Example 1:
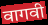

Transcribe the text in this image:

वागवी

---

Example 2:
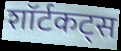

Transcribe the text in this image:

शॉर्टकट्स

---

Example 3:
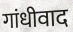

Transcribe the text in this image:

गांधीवाद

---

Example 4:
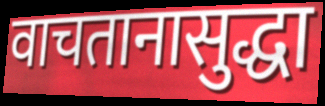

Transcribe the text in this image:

वाचतानासुद्धा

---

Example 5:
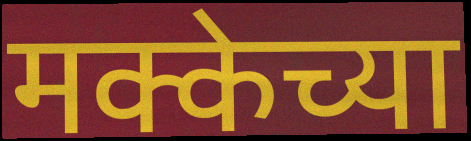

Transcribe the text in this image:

मक्केच्या